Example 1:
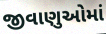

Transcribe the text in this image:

જીવાણુઓમાં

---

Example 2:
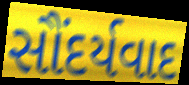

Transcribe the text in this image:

સૌંદર્યવાદ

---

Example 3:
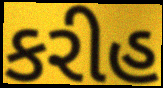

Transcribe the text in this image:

કરીહ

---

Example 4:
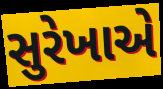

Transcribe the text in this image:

સુરેખાએ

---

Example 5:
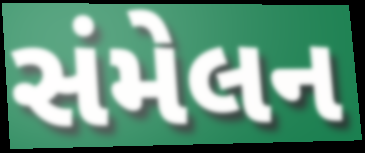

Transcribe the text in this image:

સંમેલન